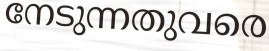
നേടുന്നതുവരെ